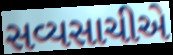
સવ્યસાચીએ